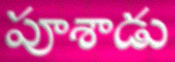
పూశాడు